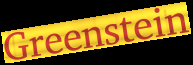
Greenstein